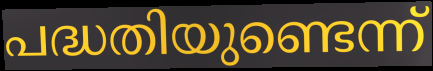
പദ്ധതിയുണ്ടെന്ന്